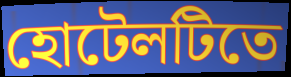
হোটেলটিতে